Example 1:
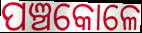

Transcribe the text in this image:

ପଞ୍ଚକୋଳେ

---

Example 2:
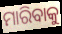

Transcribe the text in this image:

ମାରିବାକୁ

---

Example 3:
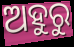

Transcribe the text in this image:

ଅହୁରୁ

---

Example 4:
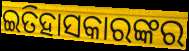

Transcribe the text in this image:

ଇତିହାସକାରଙ୍କର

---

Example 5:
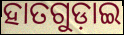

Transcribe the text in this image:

ହାତଗୁଡ଼ାଇ